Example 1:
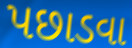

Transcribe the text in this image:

પછાડવા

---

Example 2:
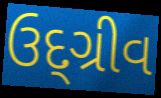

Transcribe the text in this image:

ઉદ્ગ્રીવ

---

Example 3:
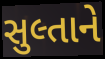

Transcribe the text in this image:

સુલ્તાને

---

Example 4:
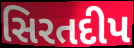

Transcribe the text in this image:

સિરતદીપ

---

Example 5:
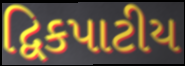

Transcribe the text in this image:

દ્વિકપાટીય